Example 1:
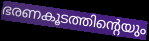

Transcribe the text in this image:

ഭരണകൂടത്തിന്റെയും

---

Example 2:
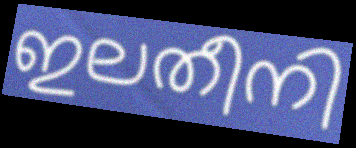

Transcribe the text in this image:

ഇലതീനി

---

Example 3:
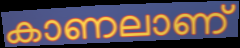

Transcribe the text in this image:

കാണലാണ്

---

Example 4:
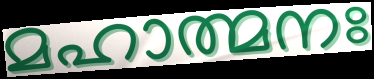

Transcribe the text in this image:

മഹാത്മനഃ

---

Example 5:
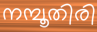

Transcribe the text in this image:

നമ്പൂതിരി